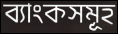
ব্যাংকসমূহ